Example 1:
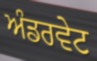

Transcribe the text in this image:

ਅੰਡਰਵੇਟ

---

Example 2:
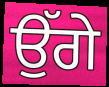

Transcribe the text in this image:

ਉੱਗੇ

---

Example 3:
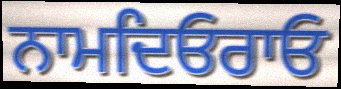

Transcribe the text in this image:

ਨਾਮਦਿਓਰਾਓ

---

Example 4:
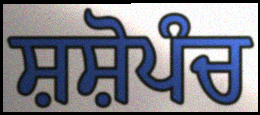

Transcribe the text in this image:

ਸ਼ਸ਼ੋਪੰਚ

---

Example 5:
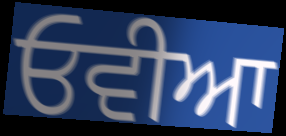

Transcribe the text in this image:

ਓਵੀਆ